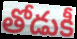
తోడుకీ